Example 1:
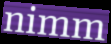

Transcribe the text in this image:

nimm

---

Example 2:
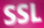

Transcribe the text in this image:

SSL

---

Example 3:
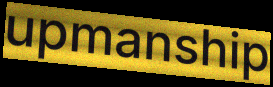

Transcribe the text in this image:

upmanship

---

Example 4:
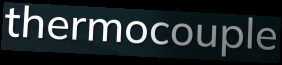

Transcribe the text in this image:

thermocouple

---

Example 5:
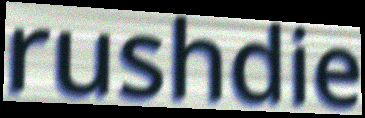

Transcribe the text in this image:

rushdie